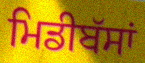
ਮਿਡੀਬੱਸਾਂ